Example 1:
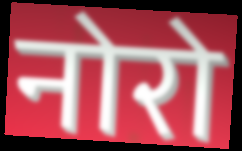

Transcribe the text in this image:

नोरो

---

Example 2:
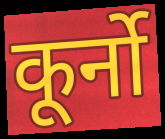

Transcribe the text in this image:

कूर्नो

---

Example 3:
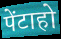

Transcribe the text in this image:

पेंटाहो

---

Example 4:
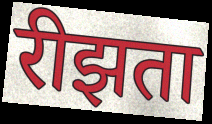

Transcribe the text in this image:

रीझता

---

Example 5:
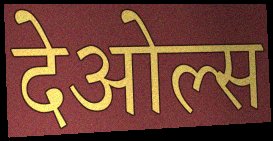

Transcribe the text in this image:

देओल्स